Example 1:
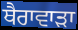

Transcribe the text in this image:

ਥੈਰਾਵਾੜਾ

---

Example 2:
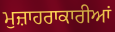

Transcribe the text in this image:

ਮੁਜ਼ਾਹਰਾਕਾਰੀਆਂ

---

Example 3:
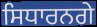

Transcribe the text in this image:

ਸਿਧਾਰਨਗੇ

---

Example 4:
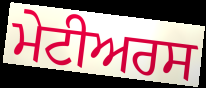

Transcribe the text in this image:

ਮੇਟੀਅਰਸ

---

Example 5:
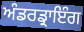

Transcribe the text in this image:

ਅੰਡਰਡ੍ਰਾਇੰਗ